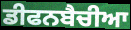
ਡੀਫਨਬੈਚੀਆ